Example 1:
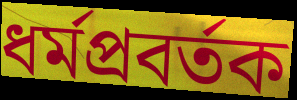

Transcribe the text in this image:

ধর্মপ্রবর্তক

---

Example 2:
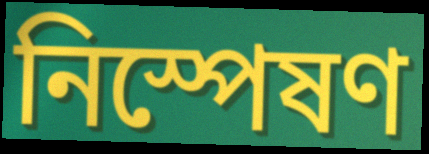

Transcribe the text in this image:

নিস্পেষণ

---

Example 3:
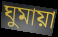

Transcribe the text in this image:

ঘুমায়া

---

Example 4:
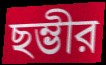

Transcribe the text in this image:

ছম্ভীর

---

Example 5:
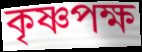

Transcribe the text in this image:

কৃষ্ণপক্ষ